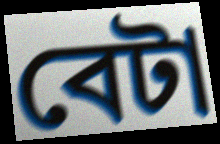
বেটা